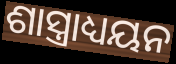
ଶାସ୍ତ୍ରାଧ୍ୟୟନ